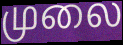
முலை